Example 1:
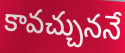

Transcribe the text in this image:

కావచ్చుననే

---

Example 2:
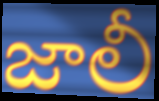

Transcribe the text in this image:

జాలీ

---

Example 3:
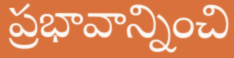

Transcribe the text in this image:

ప్రభావాన్నించి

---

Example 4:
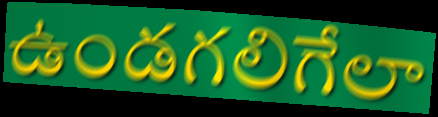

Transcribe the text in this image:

ఉండగలిగేలా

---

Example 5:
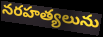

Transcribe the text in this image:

నరహత్యలును